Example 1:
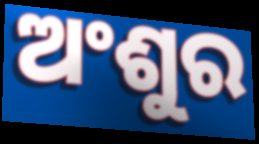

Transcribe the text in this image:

ଅଂଶୁର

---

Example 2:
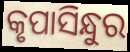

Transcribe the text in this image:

କୃପାସିନ୍ଧୁର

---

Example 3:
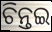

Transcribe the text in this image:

ଚିନ୍ତଇ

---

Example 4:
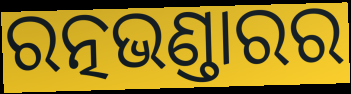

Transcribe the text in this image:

ରତ୍ନଭଣ୍ଡାରର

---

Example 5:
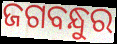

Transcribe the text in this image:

ଜଗବନ୍ଧୁର